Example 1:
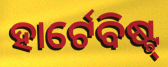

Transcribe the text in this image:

ହାର୍ଟେବିଷ୍ଟ୍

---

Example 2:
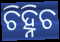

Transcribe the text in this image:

ଚିହ୍ନିଚ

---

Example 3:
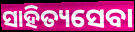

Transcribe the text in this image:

ସାହିତ୍ୟସେବା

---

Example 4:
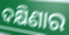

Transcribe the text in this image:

ଦକ୍ଷିଣାର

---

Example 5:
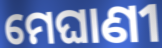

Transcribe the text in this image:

ମେଘାଣୀ